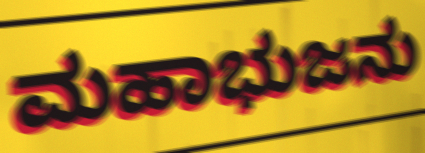
ಮಹಾಭುಜನು